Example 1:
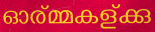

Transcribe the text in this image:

ഓര്മ്മകള്ക്കു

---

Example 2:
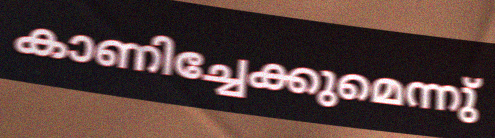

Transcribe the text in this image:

കാണിച്ചേക്കുമെന്നു്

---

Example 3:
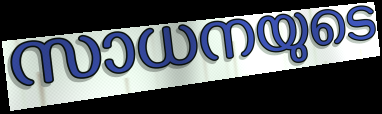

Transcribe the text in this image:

സാധനയുടെ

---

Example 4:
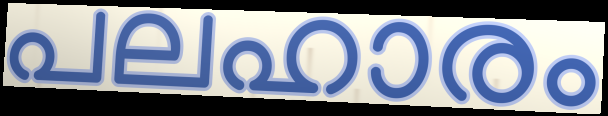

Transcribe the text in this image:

പലഹാരം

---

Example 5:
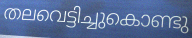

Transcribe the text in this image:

തലവെട്ടിച്ചുകൊണ്ടു